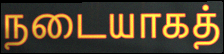
நடையாகத்